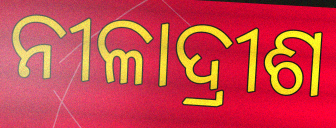
ନୀଳାଦ୍ରୀଶ